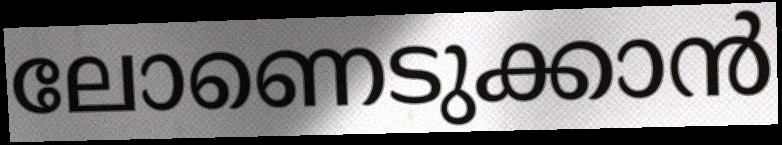
ലോണെടുക്കാൻ